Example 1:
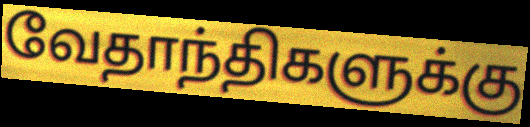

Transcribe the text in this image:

வேதாந்திகளுக்கு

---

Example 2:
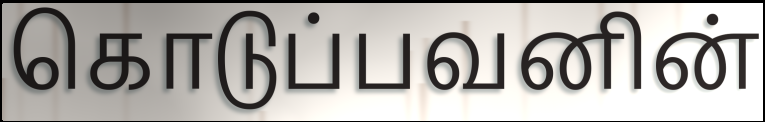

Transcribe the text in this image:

கொடுப்பவனின்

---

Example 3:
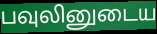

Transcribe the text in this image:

பவுலினுடைய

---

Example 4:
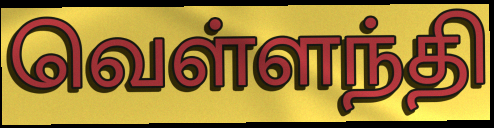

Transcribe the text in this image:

வெள்ளந்தி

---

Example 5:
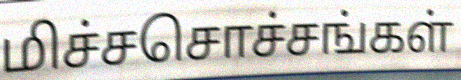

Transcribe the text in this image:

மிச்சசொச்சங்கள்